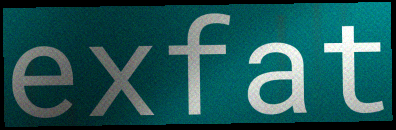
exfat